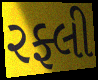
રફ્લી